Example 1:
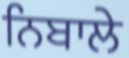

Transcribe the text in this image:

ਨਿਬਾਲੇ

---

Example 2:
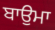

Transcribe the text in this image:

ਬਾਉਮਾ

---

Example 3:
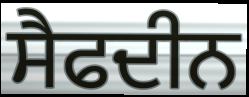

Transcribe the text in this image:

ਸੈਫਦੀਨ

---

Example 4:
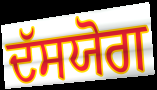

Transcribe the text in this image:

ਦੱਸਯੋਗ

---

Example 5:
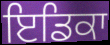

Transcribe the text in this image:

ਇਡਿਕਾ